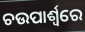
ଚଉପାର୍ଶ୍ୱରେ